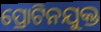
ପ୍ରୋଟିନଯୁକ୍ତ